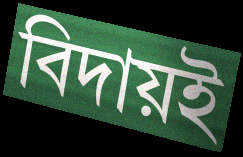
বিদায়ই